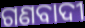
ଗଣବାଦୀ